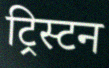
ट्रिस्टन